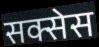
सक्सेस